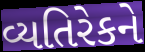
વ્યતિરેકને